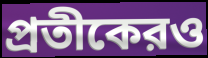
প্রতীকেরও